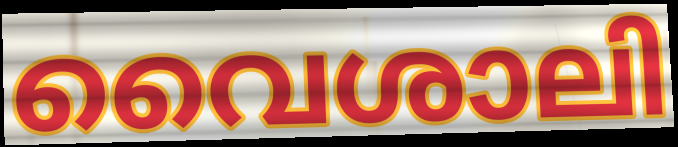
വൈശാലി